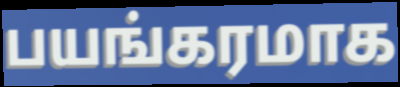
பயங்கரமாக